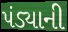
પંડ્યાની